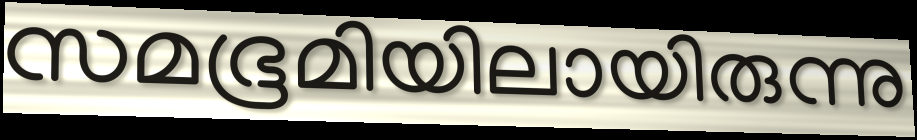
സമഭൂമിയിലായിരുന്നു